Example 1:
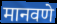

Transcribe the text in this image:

मानवणे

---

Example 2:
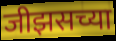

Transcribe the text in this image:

जीझसच्या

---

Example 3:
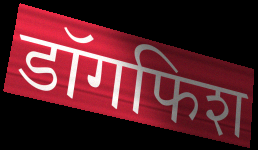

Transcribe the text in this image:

डॉगफिश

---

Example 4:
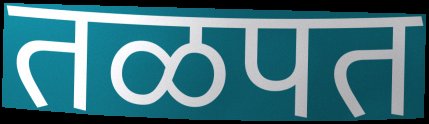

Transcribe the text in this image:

तळपत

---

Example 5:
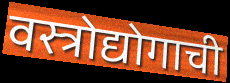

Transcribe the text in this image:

वस्त्रोद्योगाची